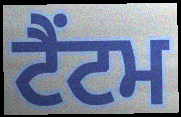
ਟੈਂਟਮ